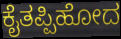
ಕೈತಪ್ಪಿಹೋದ